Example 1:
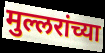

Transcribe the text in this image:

मुल्लरांच्या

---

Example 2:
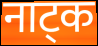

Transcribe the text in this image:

नाट्क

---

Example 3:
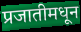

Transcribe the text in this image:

प्रजातीमधून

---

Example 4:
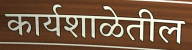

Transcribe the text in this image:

कार्यशाळेतील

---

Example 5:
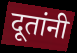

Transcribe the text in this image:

दूतांनी